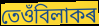
তেওঁবিলাকৰ